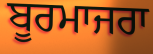
ਬੂਰਮਾਜਰਾ